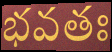
భవతః